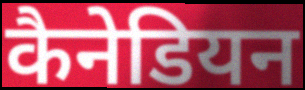
कैनेडियन